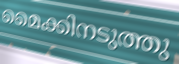
മൈക്കിനടുത്തു